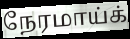
நேரமாய்க்